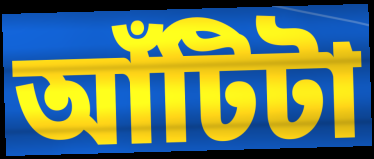
আঁটিটা